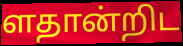
ளதான்றிட